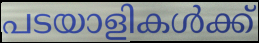
പടയാളികൾക്ക്